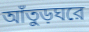
আঁতুড়ঘরে